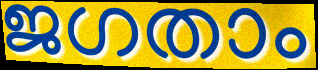
ജഗതാം